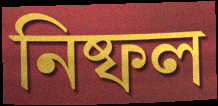
নিষ্ফল